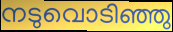
നടുവൊടിഞ്ഞു